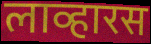
लाव्हारस